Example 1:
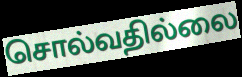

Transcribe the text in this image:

சொல்வதில்லை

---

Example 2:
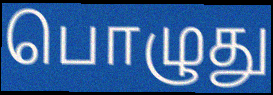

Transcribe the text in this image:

பொழுது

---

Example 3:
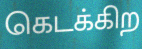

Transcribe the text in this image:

கெடக்கிற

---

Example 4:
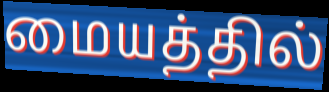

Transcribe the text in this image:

மையத்தில்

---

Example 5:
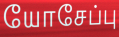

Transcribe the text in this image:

யோசேப்பு